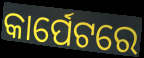
କାର୍ପେଟରେ